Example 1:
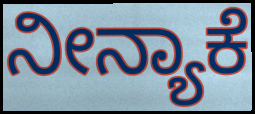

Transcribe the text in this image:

ನೀನ್ಯಾಕೆ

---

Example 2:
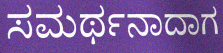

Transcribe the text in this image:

ಸಮರ್ಥನಾದಾಗ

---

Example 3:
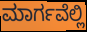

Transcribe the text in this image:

ಮಾರ್ಗವೆಲ್ಲಿ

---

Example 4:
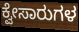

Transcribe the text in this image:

ಕ್ವೇಸಾರುಗಳ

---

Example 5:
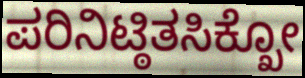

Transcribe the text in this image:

ಪರಿನಿಟ್ಠಿತಸಿಕ್ಖೋ